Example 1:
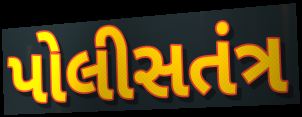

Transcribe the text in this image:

પોલીસતંત્ર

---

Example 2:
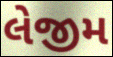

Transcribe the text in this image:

લેજીમ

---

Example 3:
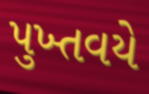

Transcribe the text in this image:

પુખ્તવયે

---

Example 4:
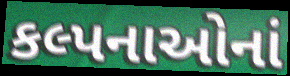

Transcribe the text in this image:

કલ્પનાઓનાં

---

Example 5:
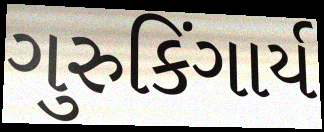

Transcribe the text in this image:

ગુરુકિંગાર્ય